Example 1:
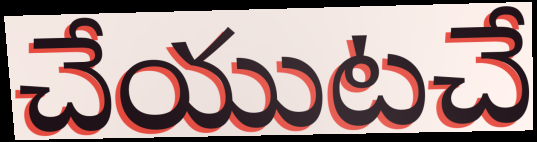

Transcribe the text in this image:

చేయుటచే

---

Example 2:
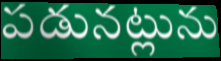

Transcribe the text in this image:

పడునట్లును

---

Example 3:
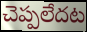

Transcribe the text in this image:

చెప్పలేదట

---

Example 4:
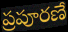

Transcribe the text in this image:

ప్రపూరణే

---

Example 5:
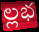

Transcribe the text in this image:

ల్లభ